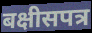
बक्षीसपत्र